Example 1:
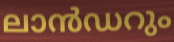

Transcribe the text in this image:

ലാൻഡറും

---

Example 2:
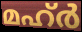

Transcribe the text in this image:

മഹ്ർ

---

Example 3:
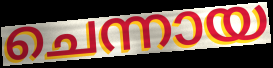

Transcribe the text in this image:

ചെന്നായ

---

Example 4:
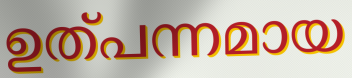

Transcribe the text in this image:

ഉത്പന്നമായ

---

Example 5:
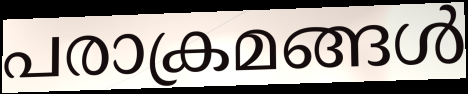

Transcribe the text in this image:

പരാക്രമങ്ങൾ